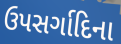
ઉપસર્ગાદિના